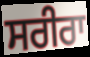
ਸਰੀਰਾ